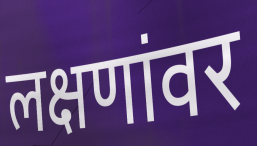
लक्षणांवर